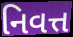
નિવત્ત